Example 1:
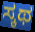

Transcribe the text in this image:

ಸ್ಕಥ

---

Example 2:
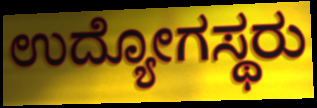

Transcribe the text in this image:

ಉದ್ಯೋಗಸ್ಥರು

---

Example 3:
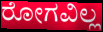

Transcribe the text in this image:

ರೋಗವಿಲ್ಲ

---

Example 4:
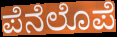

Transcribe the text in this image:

ಪೆನೆಲೊಪೆ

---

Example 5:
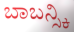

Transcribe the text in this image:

ಬಾಬನ್ಸ್ಕಿ